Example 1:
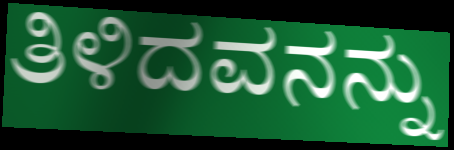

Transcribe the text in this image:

ತಿಳಿದವನನ್ನು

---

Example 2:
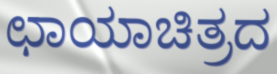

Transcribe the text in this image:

ಛಾಯಾಚಿತ್ರದ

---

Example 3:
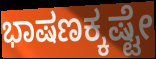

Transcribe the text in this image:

ಭಾಷಣಕ್ಕಷ್ಟೇ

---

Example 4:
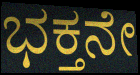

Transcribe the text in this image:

ಭಕ್ತನೇ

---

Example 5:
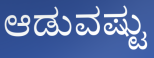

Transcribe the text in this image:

ಆಡುವಷ್ಟು